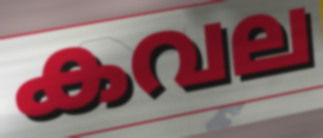
കവല